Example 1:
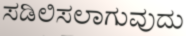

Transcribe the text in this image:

ಸಡಿಲಿಸಲಾಗುವುದು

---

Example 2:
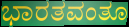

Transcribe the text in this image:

ಭಾರತವಂತೂ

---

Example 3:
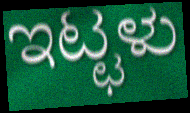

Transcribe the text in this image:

ಇಟ್ಟಳು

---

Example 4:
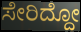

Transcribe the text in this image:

ಸೇರಿದ್ದೋ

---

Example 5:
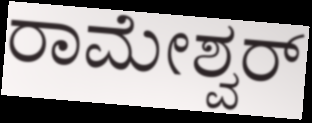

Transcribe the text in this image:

ರಾಮೇಶ್ವರ್